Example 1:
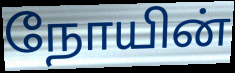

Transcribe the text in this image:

நோயின்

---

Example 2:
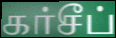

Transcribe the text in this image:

கர்சீப்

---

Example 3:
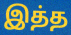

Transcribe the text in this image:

இத்த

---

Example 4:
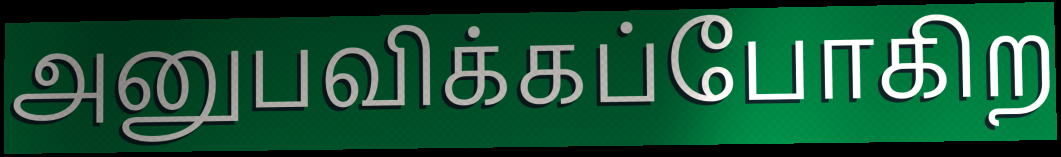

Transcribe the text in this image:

அனுபவிக்கப்போகிற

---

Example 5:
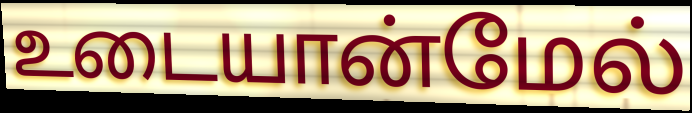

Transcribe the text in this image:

உடையான்மேல்